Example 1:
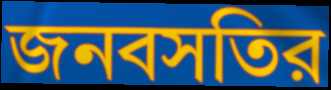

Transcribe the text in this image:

জনবসতির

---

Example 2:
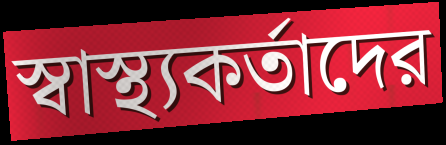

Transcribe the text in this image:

স্বাস্থ্যকর্তাদের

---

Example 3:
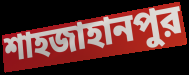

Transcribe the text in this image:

শাহজাহানপুর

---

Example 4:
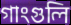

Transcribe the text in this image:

গাংগুলি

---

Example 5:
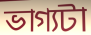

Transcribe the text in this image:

ভাগ্যটা